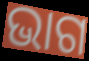
ଭାଗ